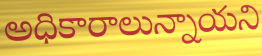
అధికారాలున్నాయని